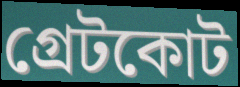
গ্রেটকোট